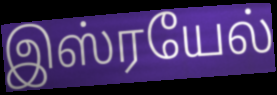
இஸ்ரயேல்